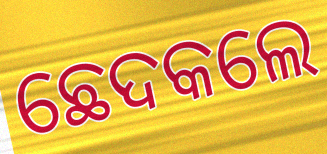
ଛେଦକଲେ